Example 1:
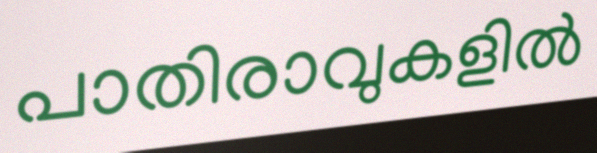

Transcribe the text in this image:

പാതിരാവുകളിൽ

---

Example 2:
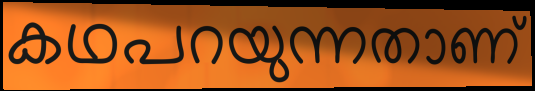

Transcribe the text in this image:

കഥപറയുന്നതാണ്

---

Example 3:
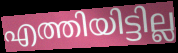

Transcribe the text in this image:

എത്തിയിട്ടില്ല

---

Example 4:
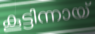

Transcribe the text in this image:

കൂട്ടിന്നായ്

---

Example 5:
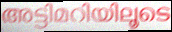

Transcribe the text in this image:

അട്ടിമറിയിലൂടെ